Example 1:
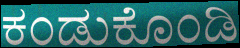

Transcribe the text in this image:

ಕಂಡುಕೊಂಡಿ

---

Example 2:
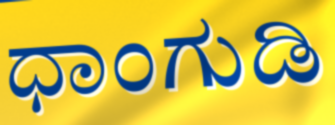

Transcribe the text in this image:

ಧಾಂಗುಡಿ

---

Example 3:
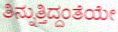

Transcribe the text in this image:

ತಿನ್ನುತ್ತಿದ್ದಂತೆಯೇ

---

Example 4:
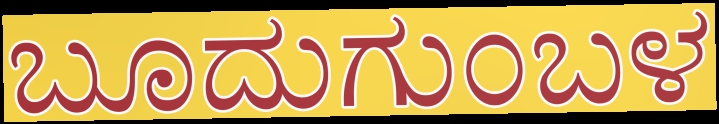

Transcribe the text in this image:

ಬೂದುಗುಂಬಳ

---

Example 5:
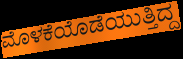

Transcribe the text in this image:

ಮೊಳಕೆಯೊಡೆಯುತ್ತಿದ್ದ